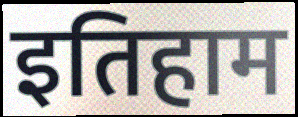
इतिहाम